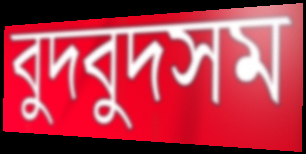
বুদবুদসম